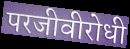
परजीवीरोधी